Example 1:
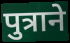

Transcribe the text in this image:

पुत्राने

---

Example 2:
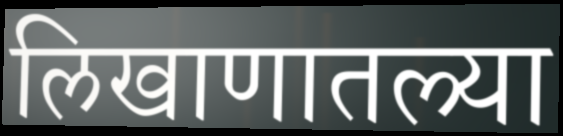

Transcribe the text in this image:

लिखाणातल्या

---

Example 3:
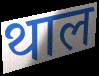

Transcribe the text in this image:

थाल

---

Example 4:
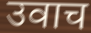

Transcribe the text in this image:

उवाच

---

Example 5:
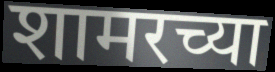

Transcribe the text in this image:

शामरच्या